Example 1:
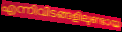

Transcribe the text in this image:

എന്നിവിടങ്ങളിലുണ്ടായ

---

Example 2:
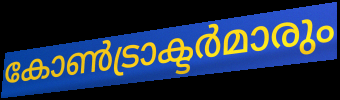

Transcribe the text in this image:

കോൺട്രാക്ടർമാരും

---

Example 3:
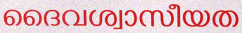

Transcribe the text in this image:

ദൈവശ്വാസീയത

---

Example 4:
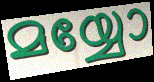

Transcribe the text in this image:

മയ്യോ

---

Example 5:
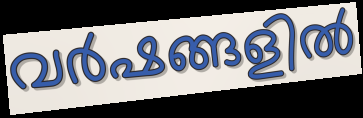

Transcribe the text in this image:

വർഷങ്ങളിൽ